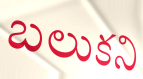
బలుకని